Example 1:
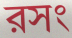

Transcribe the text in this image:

রসং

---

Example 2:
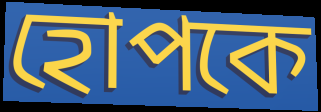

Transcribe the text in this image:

হোপকে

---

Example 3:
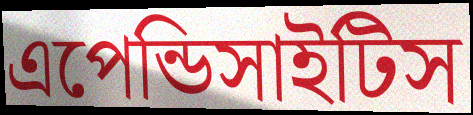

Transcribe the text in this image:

এপেন্ডিসাইটিস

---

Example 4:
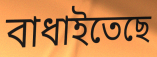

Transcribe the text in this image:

বাধাইতেছে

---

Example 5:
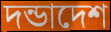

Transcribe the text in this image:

দন্ডাদেশ